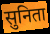
सुनिता